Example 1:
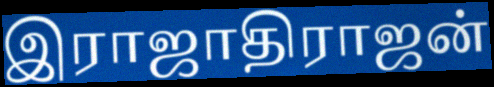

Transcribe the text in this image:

இராஜாதிராஜன்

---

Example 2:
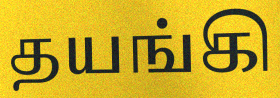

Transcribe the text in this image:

தயங்கி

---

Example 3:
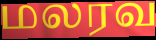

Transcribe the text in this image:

மலரவ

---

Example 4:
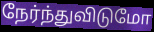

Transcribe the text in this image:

நேர்ந்துவிடுமோ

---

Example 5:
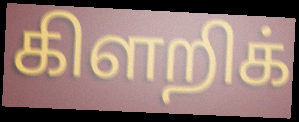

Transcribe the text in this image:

கிளறிக்